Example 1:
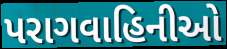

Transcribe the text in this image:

પરાગવાહિનીઓ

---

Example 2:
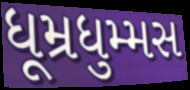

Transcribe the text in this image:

ધૂમ્રધુમ્મસ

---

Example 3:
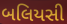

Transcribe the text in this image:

બલિયસી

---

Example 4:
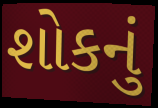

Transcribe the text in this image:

શોકનું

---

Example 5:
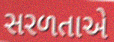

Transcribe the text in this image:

સરળતાએ